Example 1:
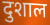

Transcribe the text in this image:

दुशाल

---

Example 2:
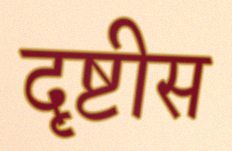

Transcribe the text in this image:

दृष्टीस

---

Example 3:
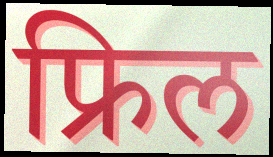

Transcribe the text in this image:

फ्रिल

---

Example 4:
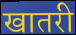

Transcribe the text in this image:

खातरी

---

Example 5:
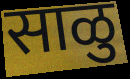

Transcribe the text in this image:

साळु